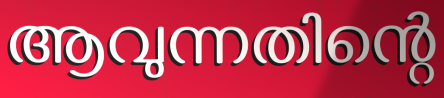
ആവുന്നതിന്റെ